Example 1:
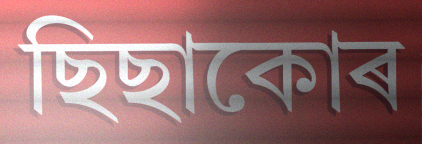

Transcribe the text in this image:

ছিছাকোৰ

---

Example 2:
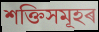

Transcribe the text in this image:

শক্তিসমূহৰ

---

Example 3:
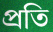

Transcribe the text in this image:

প্ৰতি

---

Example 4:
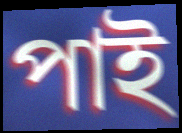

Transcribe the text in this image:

পাই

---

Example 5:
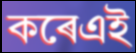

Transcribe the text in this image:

কৰেএই